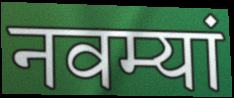
नवम्यां